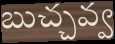
బుచ్చవ్వ